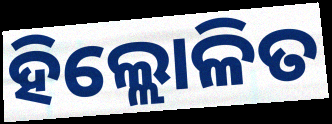
ହିଲ୍ଲୋଳିତ